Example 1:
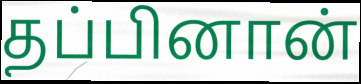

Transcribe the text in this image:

தப்பினான்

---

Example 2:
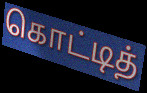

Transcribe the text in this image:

கொட்டித்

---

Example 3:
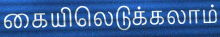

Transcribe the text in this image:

கையிலெடுக்கலாம்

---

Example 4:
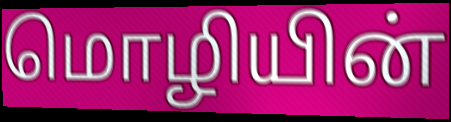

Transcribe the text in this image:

மொழியின்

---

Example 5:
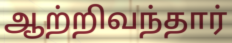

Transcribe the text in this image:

ஆற்றிவந்தார்